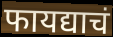
फायद्याचं